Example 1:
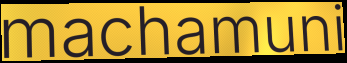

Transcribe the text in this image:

machamuni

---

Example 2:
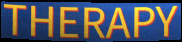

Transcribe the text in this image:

THERAPY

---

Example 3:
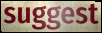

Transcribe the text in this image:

suggest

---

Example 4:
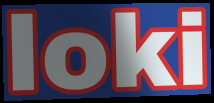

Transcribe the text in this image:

loki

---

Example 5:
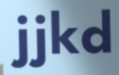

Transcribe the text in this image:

jjkd